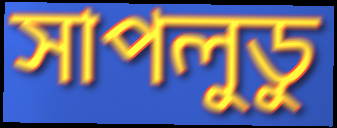
সাপলুডু